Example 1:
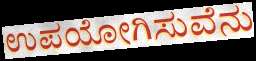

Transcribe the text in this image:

ಉಪಯೋಗಿಸುವೆನು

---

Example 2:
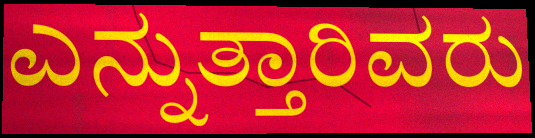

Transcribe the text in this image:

ಎನ್ನುತ್ತಾರಿವರು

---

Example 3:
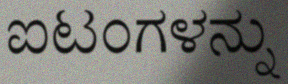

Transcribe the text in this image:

ಐಟಂಗಳನ್ನು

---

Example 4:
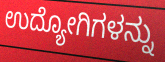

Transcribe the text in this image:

ಉದ್ಯೋಗಿಗಳನ್ನು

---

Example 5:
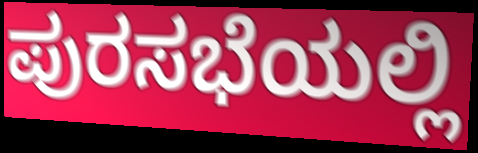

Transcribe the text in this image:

ಪುರಸಭೆಯಲ್ಲಿ